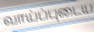
வாய்ப்புடைய